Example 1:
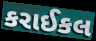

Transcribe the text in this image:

કરાઈકલ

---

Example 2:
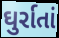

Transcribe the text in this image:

ઘુર્રાતાં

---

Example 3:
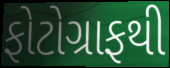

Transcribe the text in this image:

ફોટોગ્રાફથી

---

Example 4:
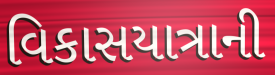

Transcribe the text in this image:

વિકાસયાત્રાની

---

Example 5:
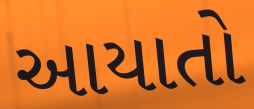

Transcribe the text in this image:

આયાતો